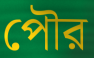
পৌর